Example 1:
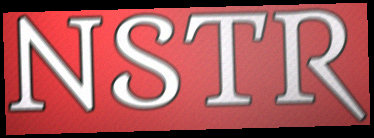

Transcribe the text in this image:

NSTR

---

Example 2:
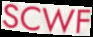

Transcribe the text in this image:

SCWF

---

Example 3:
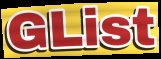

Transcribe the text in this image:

GList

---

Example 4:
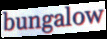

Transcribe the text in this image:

bungalow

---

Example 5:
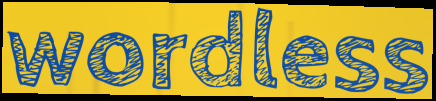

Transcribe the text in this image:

wordless